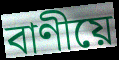
বাণীয়ে